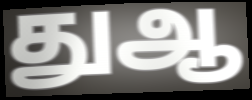
துஆ